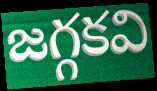
జగ్గకవి